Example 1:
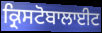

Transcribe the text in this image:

ਕ੍ਰਿਸਟੋਬਾਲਾਈਟ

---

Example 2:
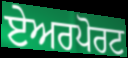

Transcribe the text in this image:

ਏਅਰਪੋਰਟ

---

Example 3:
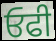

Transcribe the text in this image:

ਓਫੀ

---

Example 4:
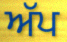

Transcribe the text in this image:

ਅੱਪ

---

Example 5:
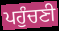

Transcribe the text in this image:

ਪਹੁੰਚਣੀ